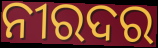
ନୀରଦର